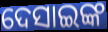
ଦେସାଇଙ୍କ